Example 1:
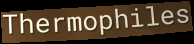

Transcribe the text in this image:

Thermophiles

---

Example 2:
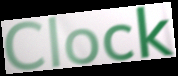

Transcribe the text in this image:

Clock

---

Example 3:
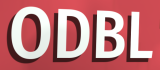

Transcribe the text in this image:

ODBL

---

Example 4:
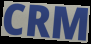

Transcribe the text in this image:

CRM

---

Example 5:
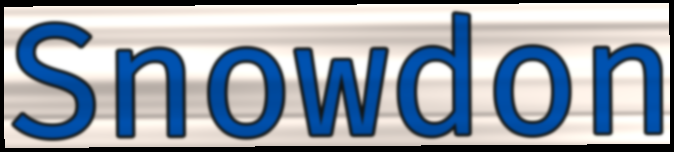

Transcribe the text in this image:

Snowdon